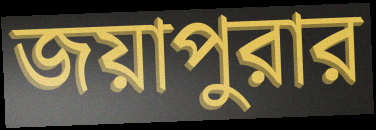
জয়াপুরার